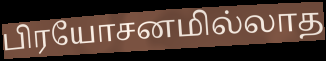
பிரயோசனமில்லாத